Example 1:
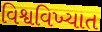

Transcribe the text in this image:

વિશ્વવિખ્યાત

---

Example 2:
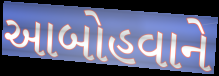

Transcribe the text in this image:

આબોહવાને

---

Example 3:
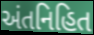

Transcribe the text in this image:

અંતનિહિત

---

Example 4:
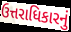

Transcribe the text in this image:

ઉત્તરાધિકારનું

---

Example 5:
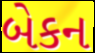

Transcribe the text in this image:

બેકન